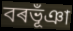
বৰভূঁঞা